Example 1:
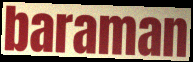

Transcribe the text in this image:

baraman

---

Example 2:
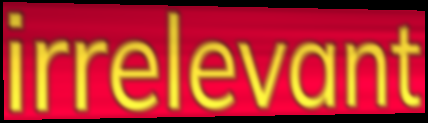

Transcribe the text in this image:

irrelevant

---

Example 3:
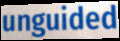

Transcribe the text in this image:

unguided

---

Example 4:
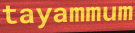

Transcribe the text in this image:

tayammum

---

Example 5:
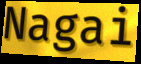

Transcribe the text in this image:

Nagai